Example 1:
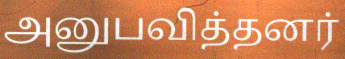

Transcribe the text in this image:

அனுபவித்தனர்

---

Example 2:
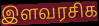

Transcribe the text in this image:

இளவரசிக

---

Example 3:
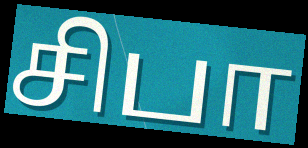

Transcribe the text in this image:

சிபா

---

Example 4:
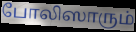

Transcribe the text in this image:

போலிஸாரும்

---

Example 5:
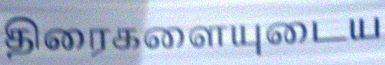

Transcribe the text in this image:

திரைகளையுடைய